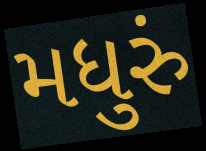
મધુરું